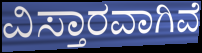
ವಿಸ್ತಾರವಾಗಿವೆ